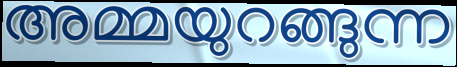
അമ്മയുറങ്ങുന്ന